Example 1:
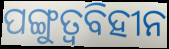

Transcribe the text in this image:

ପଙ୍ଗୁତ୍ୱବିହୀନ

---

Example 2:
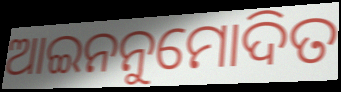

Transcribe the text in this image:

ଆଇନନୁମୋଦିତ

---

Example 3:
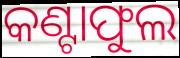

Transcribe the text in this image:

କଣ୍ଟାଫୁଲ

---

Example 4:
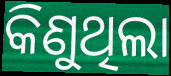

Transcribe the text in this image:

କିଣୁଥିଲା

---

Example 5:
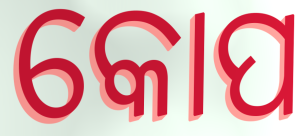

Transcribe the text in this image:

କୋପ